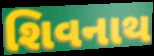
શિવનાથ